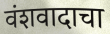
वंशवादाचा